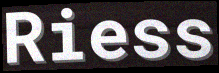
Riess